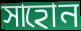
সাহোন